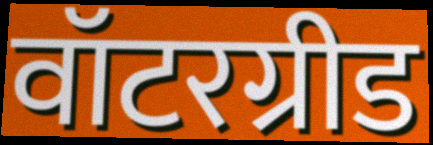
वॉटरग्रीड